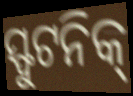
ସ୍ଫୁଟନିକ୍